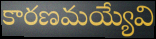
కారణమయ్యేవి